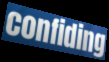
confiding